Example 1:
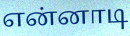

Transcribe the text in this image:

என்னாடி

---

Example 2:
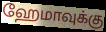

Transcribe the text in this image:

ஹேமாவுக்கு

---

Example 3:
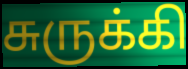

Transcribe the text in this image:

சுருக்கி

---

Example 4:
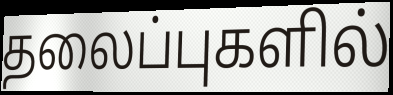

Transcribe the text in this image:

தலைப்புகளில்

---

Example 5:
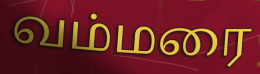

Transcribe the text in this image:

வம்மரை